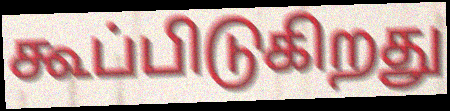
கூப்பிடுகிறது